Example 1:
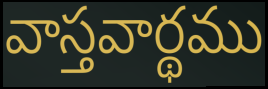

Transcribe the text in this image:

వాస్తవార్థము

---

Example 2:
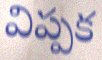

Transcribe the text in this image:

విప్పక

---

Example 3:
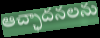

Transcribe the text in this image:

ఆచ్ఛాదనలను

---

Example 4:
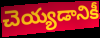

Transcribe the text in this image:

చెయ్యడానికీ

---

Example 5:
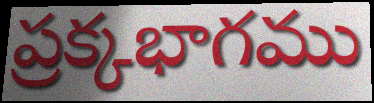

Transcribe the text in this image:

ప్రక్కభాగము